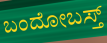
ಬಂದೋಬಸ್ತ್